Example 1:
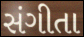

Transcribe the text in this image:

સંગીતા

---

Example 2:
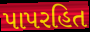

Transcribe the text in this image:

પાપરહિત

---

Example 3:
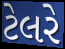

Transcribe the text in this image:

ટેલરે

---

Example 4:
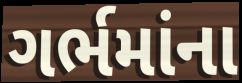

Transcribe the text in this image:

ગર્ભમાંના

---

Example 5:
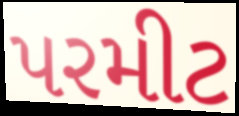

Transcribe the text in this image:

પરમીટ